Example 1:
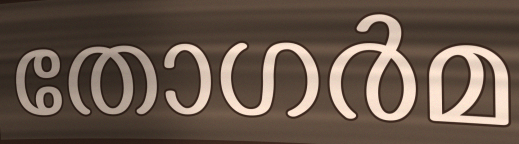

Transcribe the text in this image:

തോഗർമ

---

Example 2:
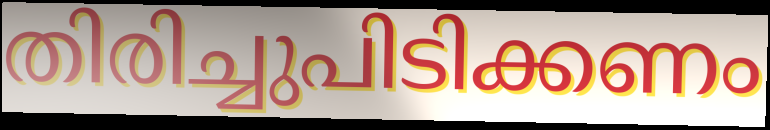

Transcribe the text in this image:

തിരിച്ചുപിടിക്കണം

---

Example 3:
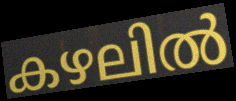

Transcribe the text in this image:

കഴലിൽ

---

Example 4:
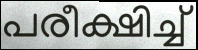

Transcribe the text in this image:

പരീക്ഷിച്ച്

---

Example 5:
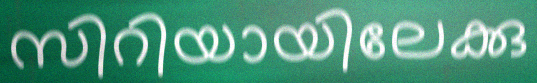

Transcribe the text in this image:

സിറിയായിലേക്കു